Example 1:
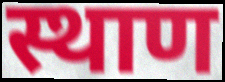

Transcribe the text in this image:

स्थाण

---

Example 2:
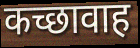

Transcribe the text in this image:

कच्छावाह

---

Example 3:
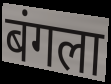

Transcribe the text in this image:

बंगला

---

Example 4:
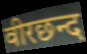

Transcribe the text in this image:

वीरछन्द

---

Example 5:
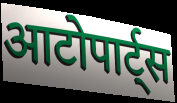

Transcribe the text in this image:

आटोपार्ट्स